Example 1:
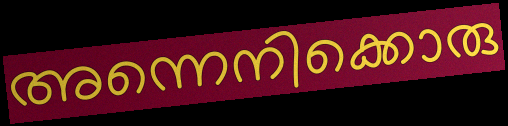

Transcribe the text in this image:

അന്നെനിക്കൊരു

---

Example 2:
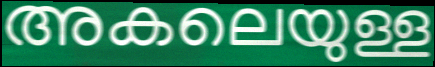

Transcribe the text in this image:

അകലെയുള്ള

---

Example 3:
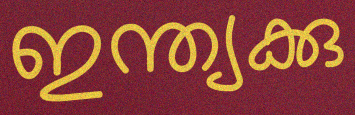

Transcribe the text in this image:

ഇന്ത്യക്കു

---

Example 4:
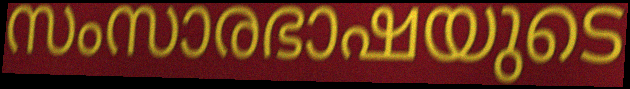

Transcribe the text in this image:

സംസാരഭാഷയുടെ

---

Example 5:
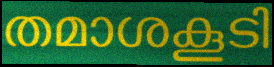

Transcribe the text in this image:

തമാശകൂടി